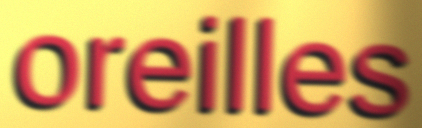
oreilles